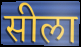
सीला